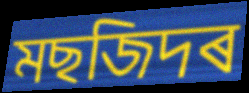
মছজিদৰ